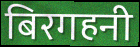
बिरगहनी